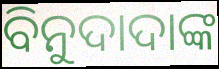
ବିନୁଦାଦାଙ୍କ